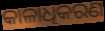
କାଳାଧିକରଣ